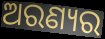
ଅରଣ୍ୟର